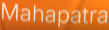
Mahapatra